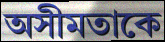
অসীমতাকে